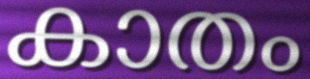
കാതം